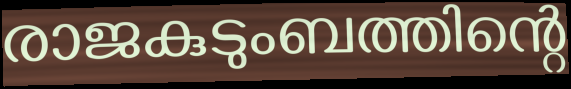
രാജകുടുംബത്തിന്റെ